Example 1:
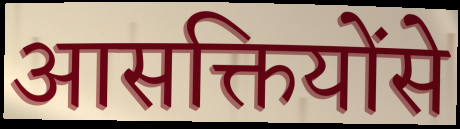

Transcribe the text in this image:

आसक्तियोंसे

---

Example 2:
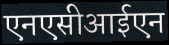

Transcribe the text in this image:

एनएसीआईएन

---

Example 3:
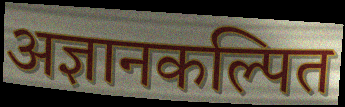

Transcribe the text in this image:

अज्ञानकल्पित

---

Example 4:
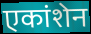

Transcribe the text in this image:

एकांशेन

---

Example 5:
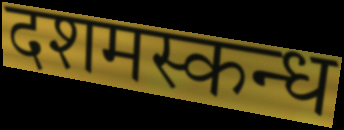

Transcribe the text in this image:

दशमस्कन्ध